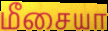
மீசையா